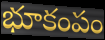
భూకంపం